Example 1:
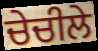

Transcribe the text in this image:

ਚੇਚੀਲੇ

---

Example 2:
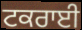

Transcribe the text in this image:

ਟਕਰਾਈ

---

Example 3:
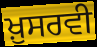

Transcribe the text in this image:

ਖ਼ੁਸਰਵੀ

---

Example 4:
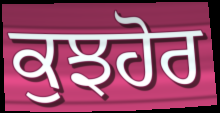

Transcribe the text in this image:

ਕੁਝਹੋਰ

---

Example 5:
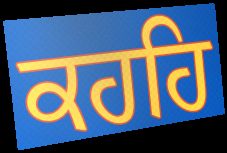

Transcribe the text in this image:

ਕਹਹਿ